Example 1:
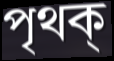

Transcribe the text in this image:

পৃথক্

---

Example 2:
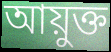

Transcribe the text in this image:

আয়ুক্ত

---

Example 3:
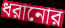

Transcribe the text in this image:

ধরানোর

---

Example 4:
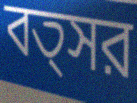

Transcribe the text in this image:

বত্সর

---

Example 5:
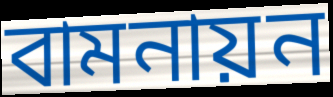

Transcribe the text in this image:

বামনায়ন